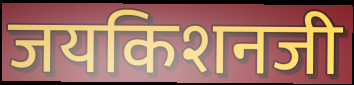
जयकिशनजी